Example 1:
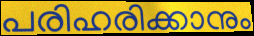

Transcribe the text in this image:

പരിഹരിക്കാനും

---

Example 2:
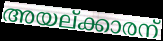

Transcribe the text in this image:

അയല്ക്കാരന്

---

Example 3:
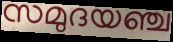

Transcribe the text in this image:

സമുദയഞ്ച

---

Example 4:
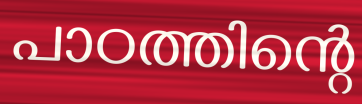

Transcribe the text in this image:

പാഠത്തിന്റെ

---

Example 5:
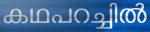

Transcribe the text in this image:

കഥപറച്ചിൽ